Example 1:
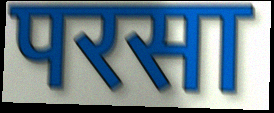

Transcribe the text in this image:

परसा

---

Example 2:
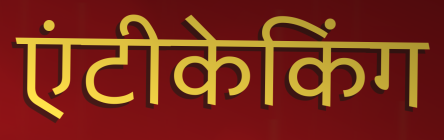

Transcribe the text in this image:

एंटीकेकिंग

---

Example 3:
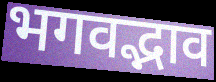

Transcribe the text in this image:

भगवद्भाव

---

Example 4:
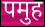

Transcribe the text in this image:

पमुह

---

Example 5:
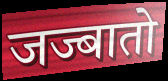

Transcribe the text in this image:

जज्बातो